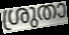
ശ്രുതാ